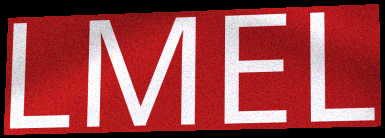
LMEL